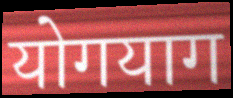
योगयाग